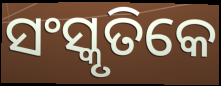
ସଂସ୍କୃତିକେ